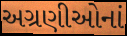
અગ્રણીઓનાં